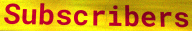
Subscribers